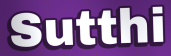
Sutthi